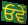
ਓਵੇਂ